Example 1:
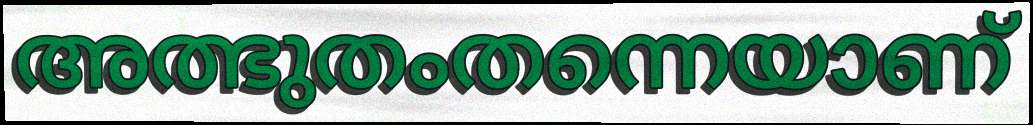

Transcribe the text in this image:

അത്ഭുതംതന്നെയാണ്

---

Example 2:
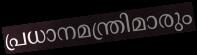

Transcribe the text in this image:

പ്രധാനമന്ത്രിമാരും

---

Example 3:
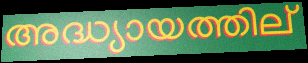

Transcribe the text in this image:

അദ്ധ്യായത്തില്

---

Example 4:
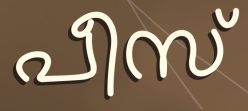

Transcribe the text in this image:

പീസ്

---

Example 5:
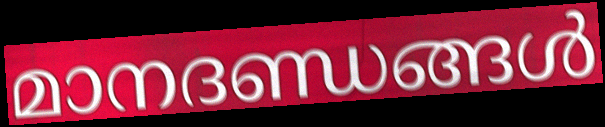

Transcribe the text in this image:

മാനദണ്ഡങ്ങൾ